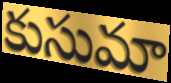
కుసుమా